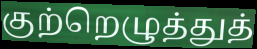
குற்றெழுத்துத்